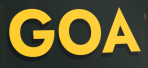
GOA